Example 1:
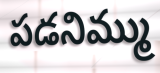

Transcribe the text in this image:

పడనిమ్ము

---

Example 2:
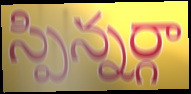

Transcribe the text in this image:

స్పిన్నర్గా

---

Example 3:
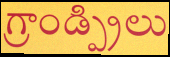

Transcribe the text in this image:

గ్రాండ్ప్రిలు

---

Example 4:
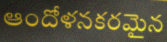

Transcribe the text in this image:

ఆందోళనకరమైన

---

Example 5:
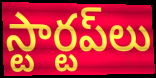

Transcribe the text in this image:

స్టార్టప్‌లు